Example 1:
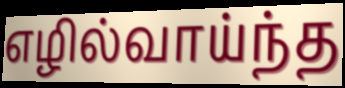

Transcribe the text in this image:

எழில்வாய்ந்த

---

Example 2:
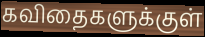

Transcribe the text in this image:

கவிதைகளுக்குள்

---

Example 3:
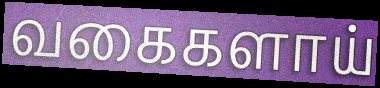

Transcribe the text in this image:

வகைகளாய்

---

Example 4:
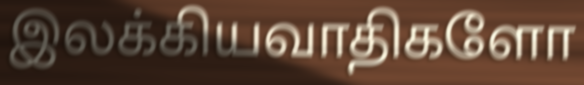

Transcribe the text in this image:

இலக்கியவாதிகளோ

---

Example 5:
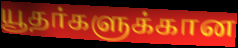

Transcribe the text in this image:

யூதர்களுக்கான